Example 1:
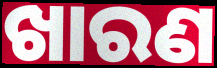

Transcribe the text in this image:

ଖାରଣ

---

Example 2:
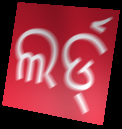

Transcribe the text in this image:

ଲର୍ଡ୍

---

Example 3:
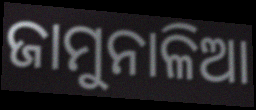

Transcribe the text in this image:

ଜାମୁନାଳିଆ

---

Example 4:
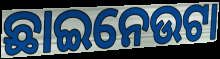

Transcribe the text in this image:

ଛାଇନେଉଟା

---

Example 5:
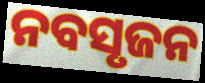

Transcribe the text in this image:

ନବସୃଜନ